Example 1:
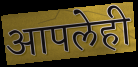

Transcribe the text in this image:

आपलेही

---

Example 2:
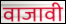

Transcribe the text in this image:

वाजावी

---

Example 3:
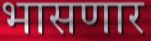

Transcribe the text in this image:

भासणार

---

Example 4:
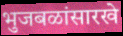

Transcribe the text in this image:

भुजबळांसारखे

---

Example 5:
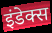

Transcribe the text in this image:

इंडेक्स